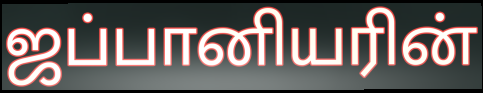
ஜப்பானியரின்